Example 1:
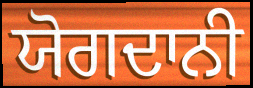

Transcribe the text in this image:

ਯੋਗਦਾਨੀ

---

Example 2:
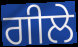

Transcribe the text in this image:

ਗੀਲੇ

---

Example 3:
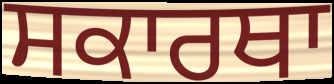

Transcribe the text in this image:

ਸਕਾਰਥਾ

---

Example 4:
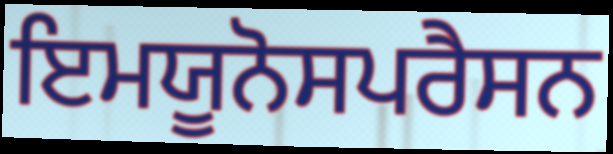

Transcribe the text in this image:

ਇਮਯੂਨੋਸਪਰੈਸਨ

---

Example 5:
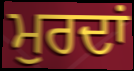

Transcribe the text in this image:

ਮੁਰਦਾਂ